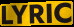
LYRIC